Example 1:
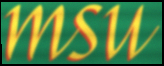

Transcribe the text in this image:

msu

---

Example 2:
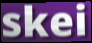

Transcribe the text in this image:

skei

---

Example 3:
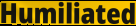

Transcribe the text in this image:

Humiliated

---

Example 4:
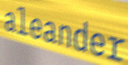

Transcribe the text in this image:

aleander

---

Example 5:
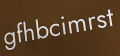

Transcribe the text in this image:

gfhbcimrst